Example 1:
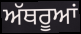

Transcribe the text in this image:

ਅੱਥਰੂਆਂ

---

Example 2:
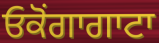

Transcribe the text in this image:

ਓਕੋਂਗਾਗਾਟਾ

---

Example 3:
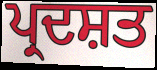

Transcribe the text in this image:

ਪ੍ਰਦਸ਼ਤ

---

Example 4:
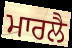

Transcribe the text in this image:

ਮਾਰਲੈ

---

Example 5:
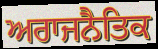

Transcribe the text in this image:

ਅਰਾਜਨੈਤਿਕ